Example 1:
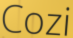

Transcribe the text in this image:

Cozi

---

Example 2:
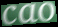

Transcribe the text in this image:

cao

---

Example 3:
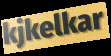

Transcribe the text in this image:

kjkelkar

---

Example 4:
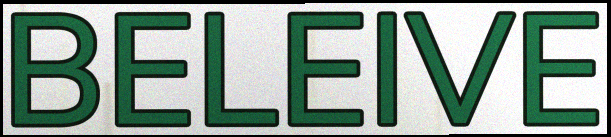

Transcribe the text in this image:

BELEIVE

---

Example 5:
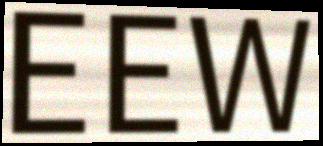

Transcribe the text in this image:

EEW